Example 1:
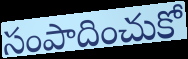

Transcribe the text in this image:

సంపాదించుకో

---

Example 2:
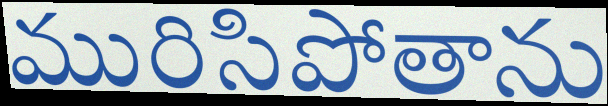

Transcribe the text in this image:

మురిసిపోతాను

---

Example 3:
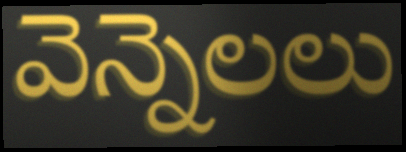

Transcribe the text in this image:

వెన్నెలలు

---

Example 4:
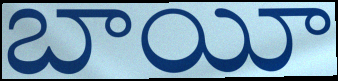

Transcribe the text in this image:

బాయీ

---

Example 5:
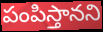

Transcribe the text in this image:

పంపిస్తానని